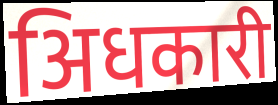
अिधकारी